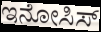
ಇನೋಸಿಸ್